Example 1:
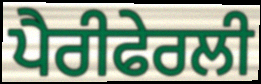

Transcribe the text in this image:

ਪੈਰੀਫੇਰਲੀ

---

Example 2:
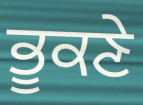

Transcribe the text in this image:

ਭੂਕਣੇ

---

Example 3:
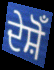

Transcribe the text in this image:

ਦੇਸ਼ੋਁ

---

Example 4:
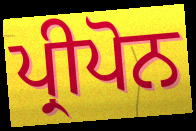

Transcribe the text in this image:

ਪ੍ਰੀਪੋਨ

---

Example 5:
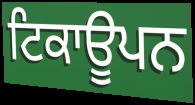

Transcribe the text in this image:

ਟਿਕਾਊਪਨ